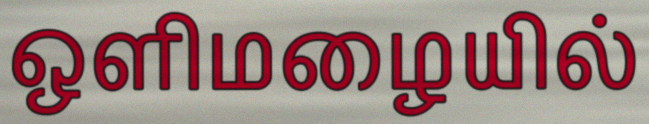
ஒளிமழையில்